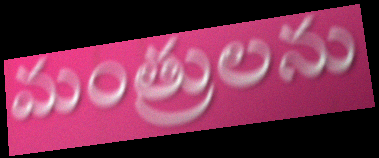
మంత్రులను